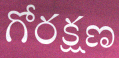
గోరక్షణ